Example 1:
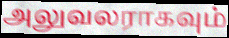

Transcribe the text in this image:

அலுவலராகவும்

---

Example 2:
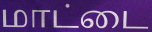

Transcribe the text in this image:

மாட்டை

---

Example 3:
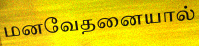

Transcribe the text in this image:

மனவேதனையால்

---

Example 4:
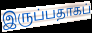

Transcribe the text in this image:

இருப்பதாகப்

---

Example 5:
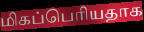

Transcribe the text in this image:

மிகப்பெரியதாக